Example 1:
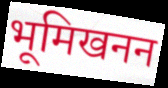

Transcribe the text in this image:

भूमिखनन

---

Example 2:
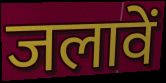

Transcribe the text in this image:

जलावें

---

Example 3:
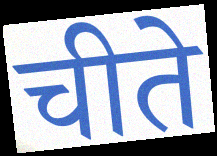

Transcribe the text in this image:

चीते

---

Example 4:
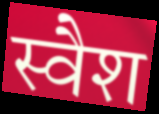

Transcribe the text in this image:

स्वैश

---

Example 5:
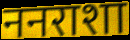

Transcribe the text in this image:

ननराशा